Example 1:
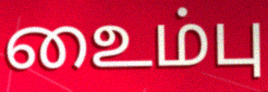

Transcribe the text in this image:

உைம்பு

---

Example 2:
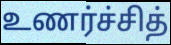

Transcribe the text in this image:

உணர்ச்சித்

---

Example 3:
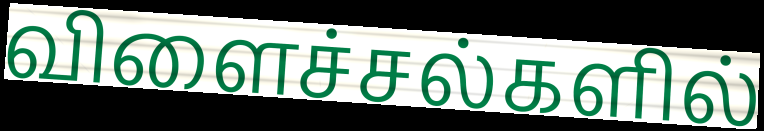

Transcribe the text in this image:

விளைச்சல்களில்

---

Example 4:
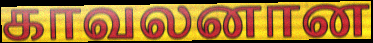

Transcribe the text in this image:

காவலனான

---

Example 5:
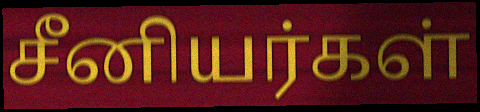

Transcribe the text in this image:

சீனியர்கள்